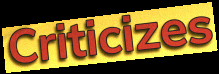
Criticizes